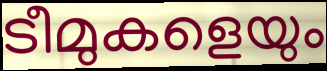
ടീമുകളെയും